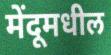
मेंदूमधील